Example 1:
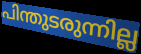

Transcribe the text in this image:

പിന്തുടരുന്നില്ല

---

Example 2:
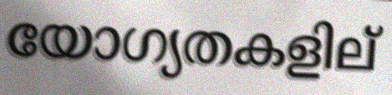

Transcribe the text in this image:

യോഗ്യതകളില്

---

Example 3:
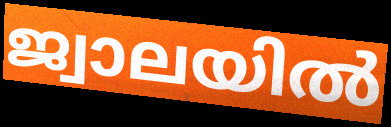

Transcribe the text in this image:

ജ്വാലയിൽ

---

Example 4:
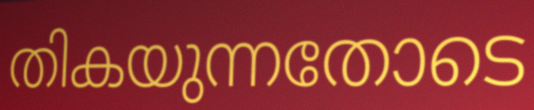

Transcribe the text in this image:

തികയുന്നതോടെ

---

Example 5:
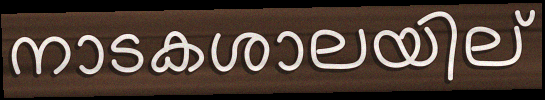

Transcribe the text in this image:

നാടകശാലയില്